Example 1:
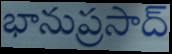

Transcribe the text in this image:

భానుప్రసాద్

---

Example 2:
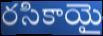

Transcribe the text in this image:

రసికాయై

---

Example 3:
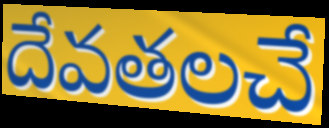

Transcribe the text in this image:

దేవతలచే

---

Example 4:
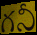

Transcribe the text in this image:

గనీ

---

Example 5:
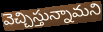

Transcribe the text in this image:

వెచ్చిస్తున్నామని